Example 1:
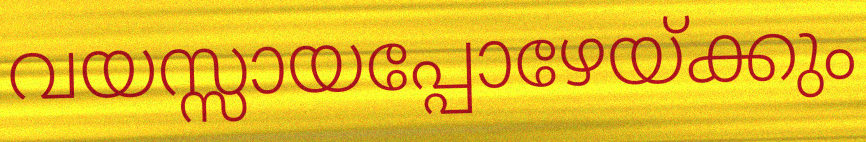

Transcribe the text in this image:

വയസ്സായപ്പോഴേയ്ക്കും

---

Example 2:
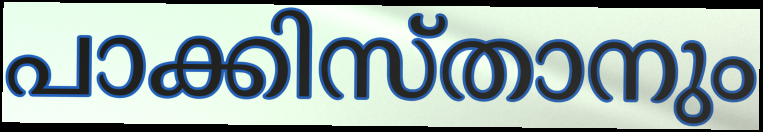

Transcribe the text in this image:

പാക്കിസ്താനും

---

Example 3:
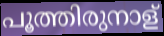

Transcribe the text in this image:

പൂത്തിരുനാള്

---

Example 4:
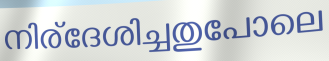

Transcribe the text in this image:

നിര്ദേശിച്ചതുപോലെ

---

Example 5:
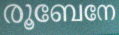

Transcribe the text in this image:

രൂബേനേ